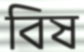
বিষ